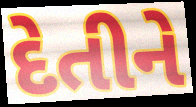
દેતીને